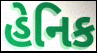
હેનિક